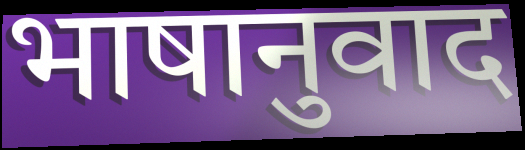
भाषानुवाद